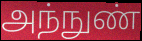
அந்நுண்